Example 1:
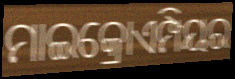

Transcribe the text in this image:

ମାଇକ୍ରୋଏମ୍ପିୟର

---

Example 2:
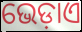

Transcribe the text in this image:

ଭେଡ଼ାଏ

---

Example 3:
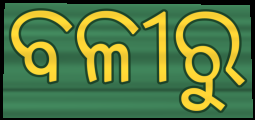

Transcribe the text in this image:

ବଳୀରୁ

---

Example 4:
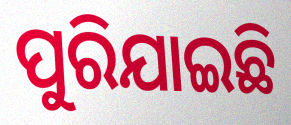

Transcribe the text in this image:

ପୁରିଯାଇଛି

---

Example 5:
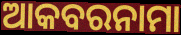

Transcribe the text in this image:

ଆକବରନାମା